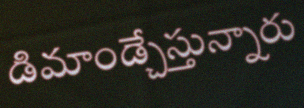
డిమాండ్చేస్తున్నారు